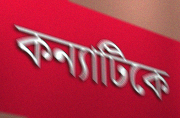
কন্যাটিকে